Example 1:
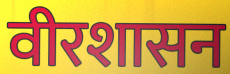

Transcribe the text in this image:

वीरशासन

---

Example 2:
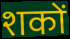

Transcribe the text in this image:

शकों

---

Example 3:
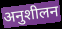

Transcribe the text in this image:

अनुशीलन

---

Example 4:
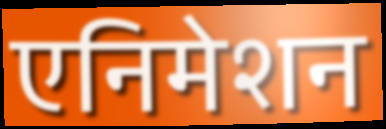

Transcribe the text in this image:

एनिमेशन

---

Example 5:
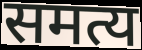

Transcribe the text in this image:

समत्य